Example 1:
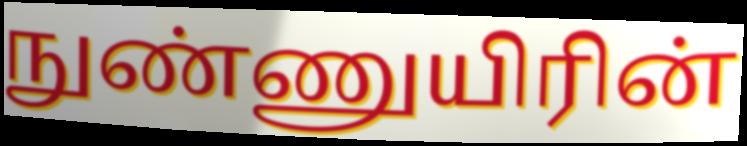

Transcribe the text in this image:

நுண்ணுயிரின்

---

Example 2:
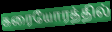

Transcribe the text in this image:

கரையோரத்தில்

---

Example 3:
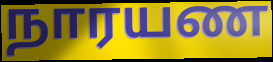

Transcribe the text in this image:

நாரயண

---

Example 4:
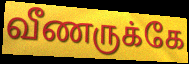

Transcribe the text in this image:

வீணருக்கே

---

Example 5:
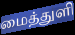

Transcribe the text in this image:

மைத்துளி